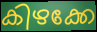
കിഴക്കേ